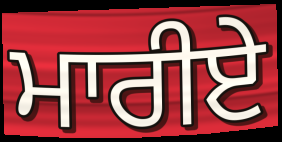
ਮਾਰੀਏ